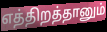
எத்திறத்தானும்